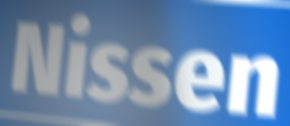
Nissen